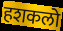
हशकलो